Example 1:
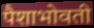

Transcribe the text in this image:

पैशाभोवती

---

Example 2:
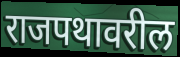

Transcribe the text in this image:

राजपथावरील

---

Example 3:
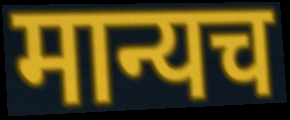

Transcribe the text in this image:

मान्यच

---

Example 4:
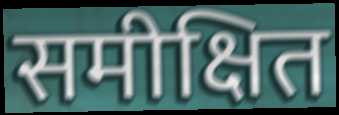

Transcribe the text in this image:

समीक्षित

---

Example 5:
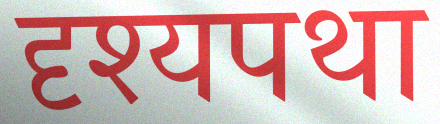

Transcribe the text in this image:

दृश्यपथा